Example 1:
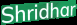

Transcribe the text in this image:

Shridhar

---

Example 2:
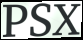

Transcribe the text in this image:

PSX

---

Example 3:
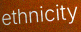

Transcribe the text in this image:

ethnicity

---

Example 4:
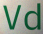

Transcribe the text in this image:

Vd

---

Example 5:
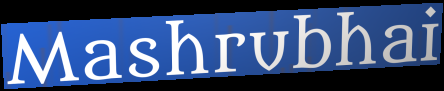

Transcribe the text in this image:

Mashrubhai